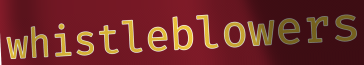
whistleblowers